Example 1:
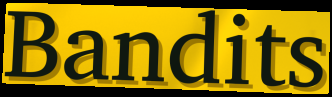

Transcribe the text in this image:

Bandits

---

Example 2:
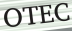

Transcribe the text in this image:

OTEC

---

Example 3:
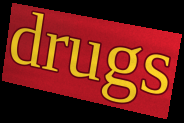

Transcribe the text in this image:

drugs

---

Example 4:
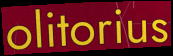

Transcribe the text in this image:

olitorius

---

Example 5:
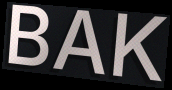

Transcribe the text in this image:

BAK